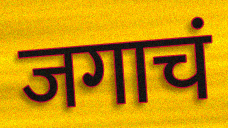
जगाचं